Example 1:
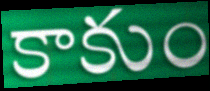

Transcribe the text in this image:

కాకుం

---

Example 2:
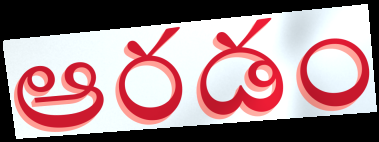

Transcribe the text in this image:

ఆరడం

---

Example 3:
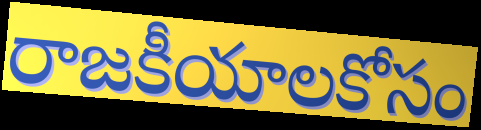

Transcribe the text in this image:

రాజకీయాలకోసం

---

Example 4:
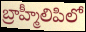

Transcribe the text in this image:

బ్రాహ్మీలిపిలో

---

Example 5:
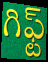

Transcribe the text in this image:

గిఫ్ట్